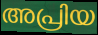
അപ്രിയ